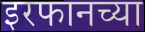
इरफानच्या